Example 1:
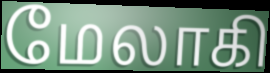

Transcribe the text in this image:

மேலாகி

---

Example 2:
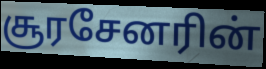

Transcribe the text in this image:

சூரசேனரின்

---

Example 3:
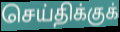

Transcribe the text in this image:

செய்திக்குக்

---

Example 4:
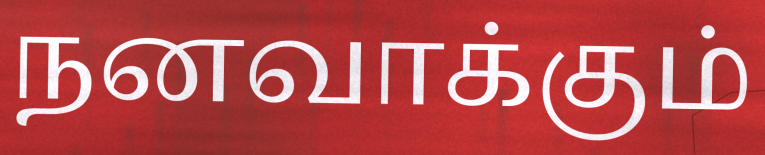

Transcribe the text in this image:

நனவாக்கும்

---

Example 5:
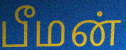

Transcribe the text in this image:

பீமன்